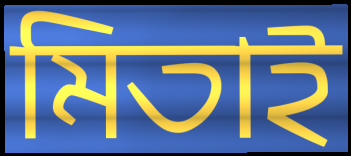
মিতাই